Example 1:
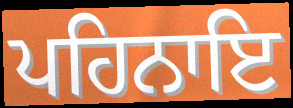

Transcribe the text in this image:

ਪਹਿਨਾਇ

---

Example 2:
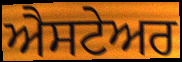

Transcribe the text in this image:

ਐਸਟੇਅਰ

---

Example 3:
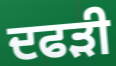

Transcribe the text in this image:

ਦਫੜੀ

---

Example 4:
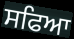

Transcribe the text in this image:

ਸਫਿਆ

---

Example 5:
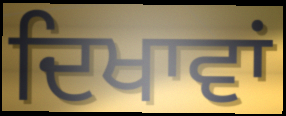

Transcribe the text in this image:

ਦਿਖਾਵਾਂ